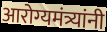
आरोग्यमंत्र्यांनी